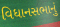
વિધાનસભાનું